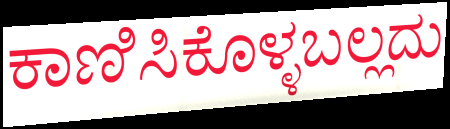
ಕಾಣಿಸಿಕೊಳ್ಳಬಲ್ಲದು